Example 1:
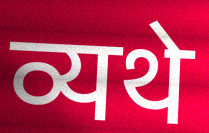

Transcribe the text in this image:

व्यथे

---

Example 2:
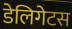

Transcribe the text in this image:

डेलिगेटस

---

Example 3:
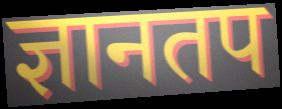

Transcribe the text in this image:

ज्ञानतप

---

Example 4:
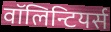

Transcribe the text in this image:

वॉलिन्टियर्स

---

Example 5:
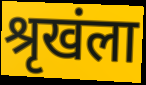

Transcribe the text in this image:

श्रृखंला